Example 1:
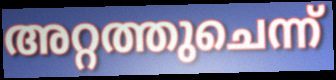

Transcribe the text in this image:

അറ്റത്തുചെന്ന്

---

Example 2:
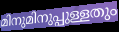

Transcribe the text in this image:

മിനുമിനുപ്പുള്ളതും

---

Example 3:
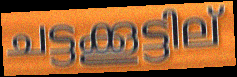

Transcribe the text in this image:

ചട്ടക്കൂട്ടില്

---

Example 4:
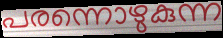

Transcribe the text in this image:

പരന്നൊഴുകുന്ന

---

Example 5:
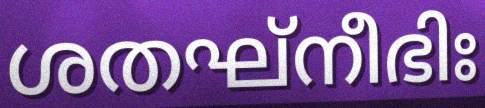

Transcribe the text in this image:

ശതഘ്നീഭിഃ